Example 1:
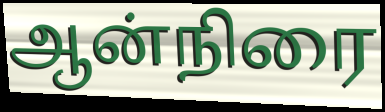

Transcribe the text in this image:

ஆன்நிரை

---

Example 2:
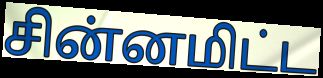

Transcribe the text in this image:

சின்னமிட்ட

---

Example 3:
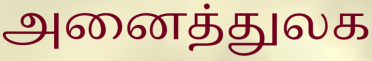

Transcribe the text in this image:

அனைத்துலக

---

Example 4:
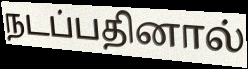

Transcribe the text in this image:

நடப்பதினால்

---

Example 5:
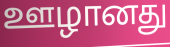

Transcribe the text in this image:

ஊழானது